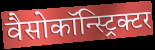
वैसोकॉन्स्ट्रिक्टर